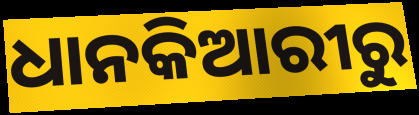
ଧାନକିଆରୀରୁ